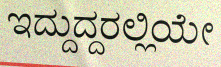
ಇದ್ದುದ್ದರಲ್ಲಿಯೇ